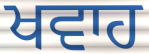
ਖਵਾਹ